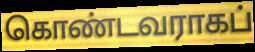
கொண்டவராகப்